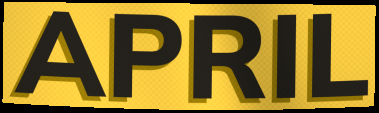
APRIL